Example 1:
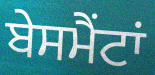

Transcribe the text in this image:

ਬੇਸਮੈਂਟਾਂ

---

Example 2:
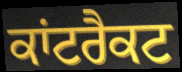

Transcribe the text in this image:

ਕਾਂਟਰੈਕਟ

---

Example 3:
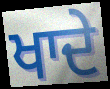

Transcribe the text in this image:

ਖਾਦੇ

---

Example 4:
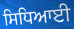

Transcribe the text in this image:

ਸਿਧਿਆਈ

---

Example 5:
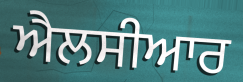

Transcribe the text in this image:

ਐਲਸੀਆਰ